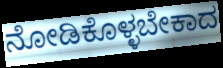
ನೋಡಿಕೊಳ್ಳಬೇಕಾದ